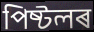
পিষ্টলৰ